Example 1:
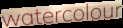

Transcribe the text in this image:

watercolour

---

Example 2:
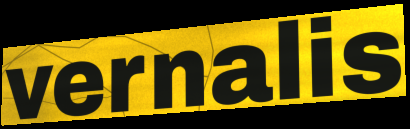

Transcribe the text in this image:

vernalis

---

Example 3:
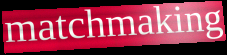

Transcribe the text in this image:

matchmaking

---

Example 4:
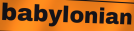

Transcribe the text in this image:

babylonian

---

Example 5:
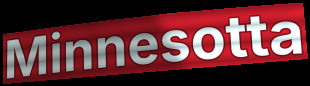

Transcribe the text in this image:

Minnesotta